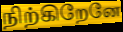
நிற்கிறேனே